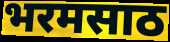
भरमसाठ